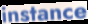
instance